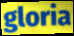
gloria